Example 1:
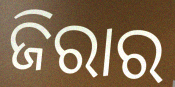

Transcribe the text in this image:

ଜିରାର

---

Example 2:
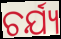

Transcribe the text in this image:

ଚର୍ଯ୍ୟ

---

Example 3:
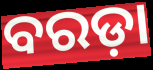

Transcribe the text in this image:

ବରଡ଼ା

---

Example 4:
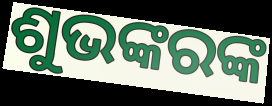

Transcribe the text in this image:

ଶୁଭଙ୍କରଙ୍କ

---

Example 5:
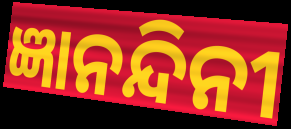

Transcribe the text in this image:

ଜ୍ଞାନନ୍ଦିନୀ